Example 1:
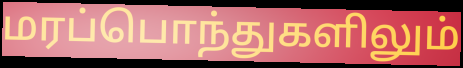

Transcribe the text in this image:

மரப்பொந்துகளிலும்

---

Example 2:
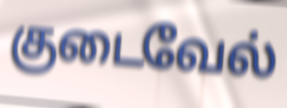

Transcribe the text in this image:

குடைவேல்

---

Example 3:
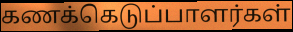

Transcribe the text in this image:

கணக்கெடுப்பாளர்கள்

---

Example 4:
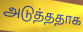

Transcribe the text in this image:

அடுத்ததாக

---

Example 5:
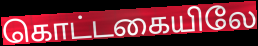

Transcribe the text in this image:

கொட்டகையிலே